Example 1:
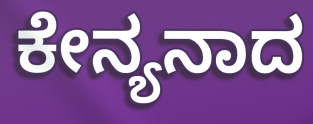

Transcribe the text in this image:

ಕೇನ್ಯನಾದ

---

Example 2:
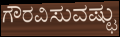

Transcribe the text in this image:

ಗೌರವಿಸುವಷ್ಟು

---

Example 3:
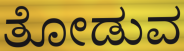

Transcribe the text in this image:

ತೋಡುವ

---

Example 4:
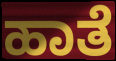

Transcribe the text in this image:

ಹಾತೆ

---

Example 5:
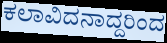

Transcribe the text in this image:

ಕಲಾವಿದನಾದ್ದರಿಂದ